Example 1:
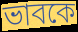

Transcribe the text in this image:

ভাবকে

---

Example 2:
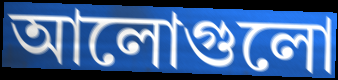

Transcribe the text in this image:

আলোগুলো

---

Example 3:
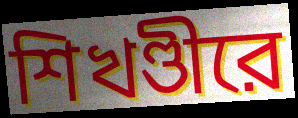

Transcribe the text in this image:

শিখণ্ডীরে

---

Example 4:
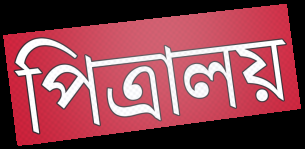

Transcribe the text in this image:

পিত্রালয়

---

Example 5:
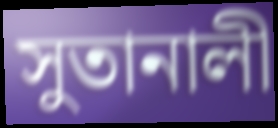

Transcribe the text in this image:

সুতানালী